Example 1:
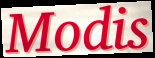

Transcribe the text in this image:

Modis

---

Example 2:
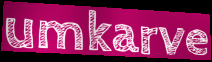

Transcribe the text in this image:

umkarve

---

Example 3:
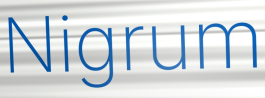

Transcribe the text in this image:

Nigrum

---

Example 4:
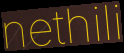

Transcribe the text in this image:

nethili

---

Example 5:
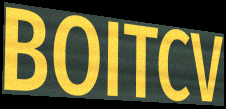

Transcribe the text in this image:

BOITCV